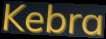
Kebra